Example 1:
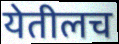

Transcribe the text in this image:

येतीलच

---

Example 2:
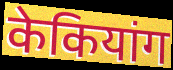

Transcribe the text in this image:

केकियांग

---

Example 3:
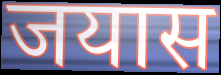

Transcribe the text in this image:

जयास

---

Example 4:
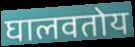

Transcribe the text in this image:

घालवतोय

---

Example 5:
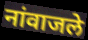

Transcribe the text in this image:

नांवाजले